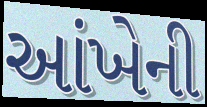
આંખેની